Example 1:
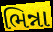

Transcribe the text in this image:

ભિન્ના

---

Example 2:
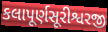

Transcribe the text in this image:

કલાપૂર્ણસૂરીશ્વરજી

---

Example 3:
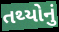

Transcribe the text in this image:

તથ્યોનું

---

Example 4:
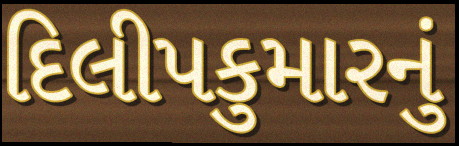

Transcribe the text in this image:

દિલીપકુમારનું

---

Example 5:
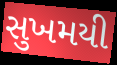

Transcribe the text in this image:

સુખમયી